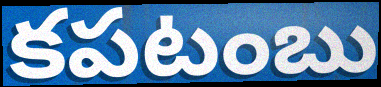
కపటంబు